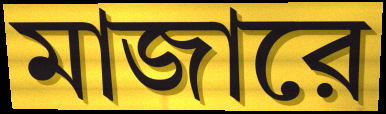
মাজারে